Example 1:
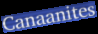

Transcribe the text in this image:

Canaanites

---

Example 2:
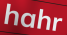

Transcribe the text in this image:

hahr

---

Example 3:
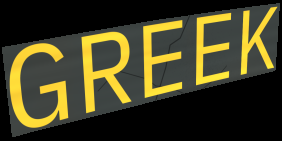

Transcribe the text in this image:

GREEK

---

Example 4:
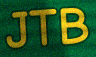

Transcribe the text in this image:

JTB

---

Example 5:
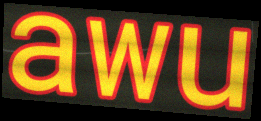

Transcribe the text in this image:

awu